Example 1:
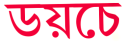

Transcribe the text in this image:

ডয়চে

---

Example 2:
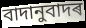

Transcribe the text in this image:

বাদানুবাদৰ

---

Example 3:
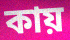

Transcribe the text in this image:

কায়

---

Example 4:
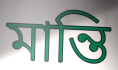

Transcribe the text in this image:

মান্তি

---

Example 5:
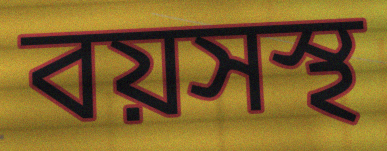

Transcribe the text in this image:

বয়সস্থ